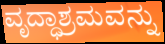
ವೃದ್ಧಾಶ್ರಮವನ್ನು